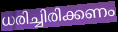
ധരിച്ചിരിക്കണം